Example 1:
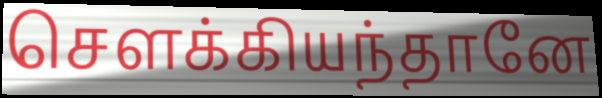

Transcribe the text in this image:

சௌக்கியந்தானே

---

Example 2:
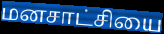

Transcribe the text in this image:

மனசாட்சியை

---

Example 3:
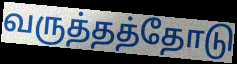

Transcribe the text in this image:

வருத்தத்தோடு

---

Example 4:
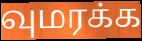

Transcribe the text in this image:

வுமரக்க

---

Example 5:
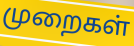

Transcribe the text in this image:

முறைகள்